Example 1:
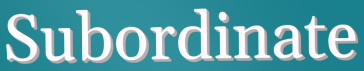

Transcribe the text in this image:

Subordinate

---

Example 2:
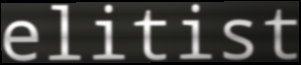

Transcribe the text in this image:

elitist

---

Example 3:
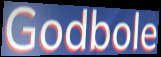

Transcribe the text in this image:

Godbole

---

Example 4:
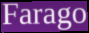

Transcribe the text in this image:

Farago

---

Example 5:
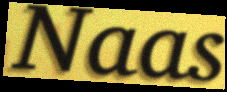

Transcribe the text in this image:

Naas